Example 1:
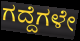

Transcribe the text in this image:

ಗದ್ದೆಗಳೇ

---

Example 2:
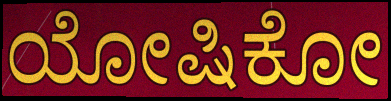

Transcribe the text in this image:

ಯೋಷಿಕೋ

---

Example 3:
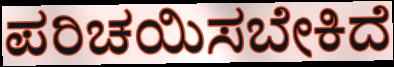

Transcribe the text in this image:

ಪರಿಚಯಿಸಬೇಕಿದೆ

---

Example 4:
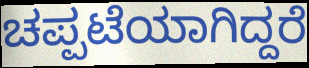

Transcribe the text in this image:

ಚಪ್ಪಟೆಯಾಗಿದ್ದರೆ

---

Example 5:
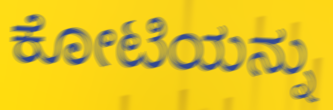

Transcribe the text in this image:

ಕೋಟಿಯನ್ನು